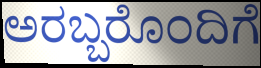
ಅರಬ್ಬರೊಂದಿಗೆ